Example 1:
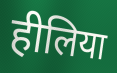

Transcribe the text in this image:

हीलिया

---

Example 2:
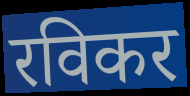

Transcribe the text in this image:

रविकर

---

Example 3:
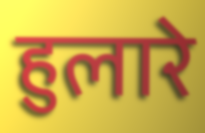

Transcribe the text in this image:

हुलारे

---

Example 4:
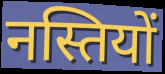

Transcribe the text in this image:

नस्तियों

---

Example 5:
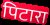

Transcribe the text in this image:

पिटारा